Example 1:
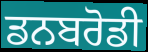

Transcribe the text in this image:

ਡਨਬਰੋਡੀ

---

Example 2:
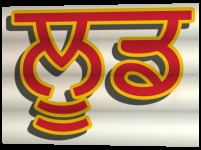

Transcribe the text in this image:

ਲੂਡ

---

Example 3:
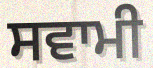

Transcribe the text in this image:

ਸਵਾਮੀ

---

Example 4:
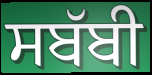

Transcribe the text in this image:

ਸਬੱਬੀ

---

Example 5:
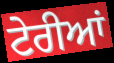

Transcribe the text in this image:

ਟੇਰੀਆਂ